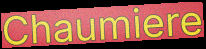
Chaumiere